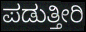
ಪಡುತ್ತೀರಿ